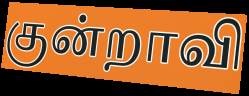
குன்றாவி